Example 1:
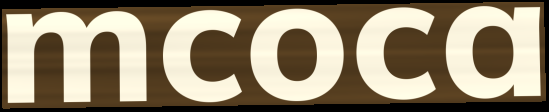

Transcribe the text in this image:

mcoca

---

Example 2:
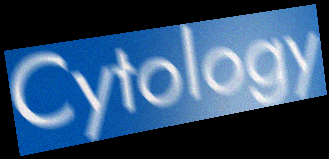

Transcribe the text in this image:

Cytology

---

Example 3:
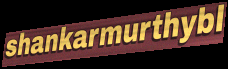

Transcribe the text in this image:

shankarmurthybl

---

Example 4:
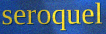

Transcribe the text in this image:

seroquel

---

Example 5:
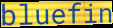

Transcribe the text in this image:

bluefin